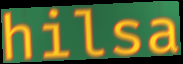
hilsa